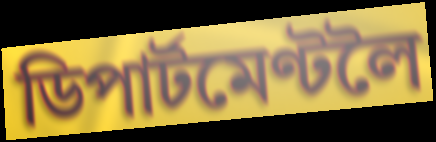
ডিপাৰ্টমেণ্টলৈ